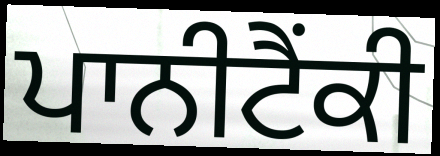
ਪਾਨੀਟੈਂਕੀ